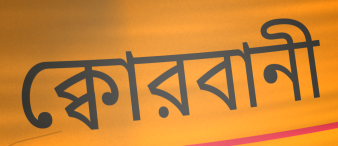
ক্বোরবানী